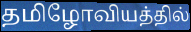
தமிழோவியத்தில்